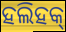
ହଲିହକ୍